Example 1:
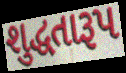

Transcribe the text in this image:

શુદ્ધતારૂપ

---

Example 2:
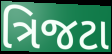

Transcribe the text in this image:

ત્રિજટા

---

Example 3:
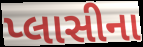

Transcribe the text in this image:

પ્લાસીના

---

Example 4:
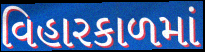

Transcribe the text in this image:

વિહારકાળમાં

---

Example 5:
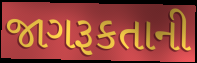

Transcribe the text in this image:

જાગરૂકતાની